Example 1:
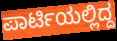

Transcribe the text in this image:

ಪಾರ್ಟಿಯಲ್ಲಿದ್ದ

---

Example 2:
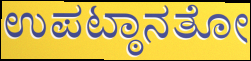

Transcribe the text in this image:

ಉಪಟ್ಠಾನತೋ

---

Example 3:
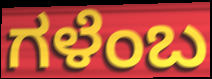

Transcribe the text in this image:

ಗಳೆಂಬ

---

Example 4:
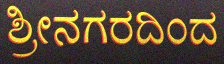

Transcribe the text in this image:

ಶ್ರೀನಗರದಿಂದ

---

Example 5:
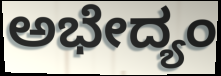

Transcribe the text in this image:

ಅಭೇದ್ಯಂ